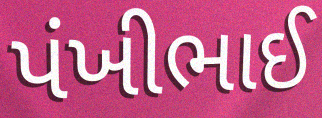
પંખીભાઈ